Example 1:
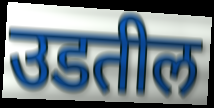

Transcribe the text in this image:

उडतील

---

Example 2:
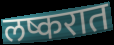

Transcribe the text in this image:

लष्करात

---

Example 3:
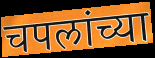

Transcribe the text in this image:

चपलांच्या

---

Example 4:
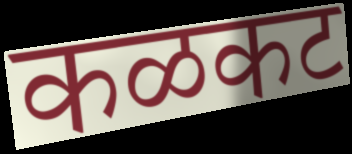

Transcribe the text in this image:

कळकट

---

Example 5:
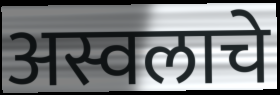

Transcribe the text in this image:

अस्वलाचे